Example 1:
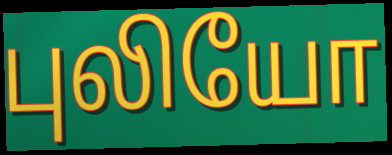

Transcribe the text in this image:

புலியோ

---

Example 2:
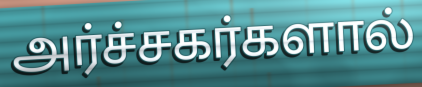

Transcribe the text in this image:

அர்ச்சகர்களால்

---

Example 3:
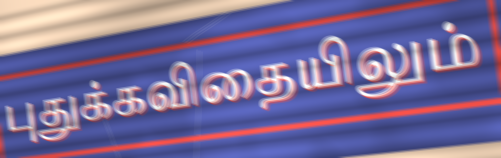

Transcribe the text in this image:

புதுக்கவிதையிலும்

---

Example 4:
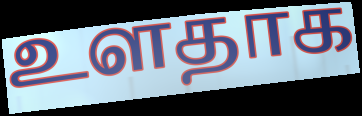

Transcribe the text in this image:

உளதாக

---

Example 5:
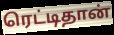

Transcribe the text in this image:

ரெட்டிதான்